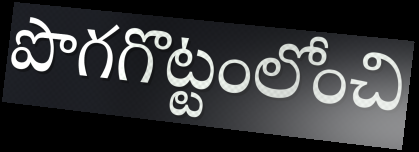
పొగగొట్టంలోంచి